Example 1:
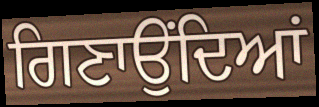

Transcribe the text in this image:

ਗਿਣਾਉਂਦਿਆਂ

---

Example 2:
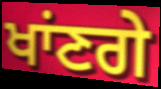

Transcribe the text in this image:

ਖਾਂਣਗੇ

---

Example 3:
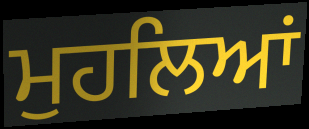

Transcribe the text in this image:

ਮੁਹਲਿਆਂ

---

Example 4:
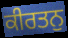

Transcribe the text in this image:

ਕੀਰਤਨੁ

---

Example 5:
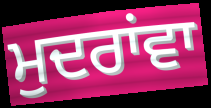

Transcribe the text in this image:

ਮੁਦਰਾਂਵਾ